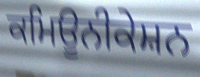
ਕਮਿਊਨੀਕੇਸ਼ਨ